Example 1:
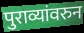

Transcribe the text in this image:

पुराव्यांवरुन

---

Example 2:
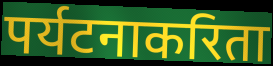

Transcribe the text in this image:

पर्यटनाकरिता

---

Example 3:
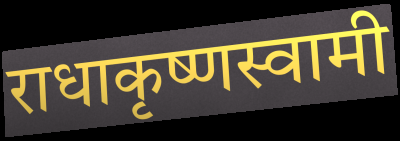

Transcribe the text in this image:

राधाकृष्णस्वामी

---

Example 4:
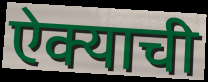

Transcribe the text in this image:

ऐक्याची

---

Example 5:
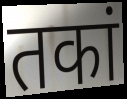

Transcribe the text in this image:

तकां